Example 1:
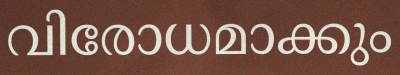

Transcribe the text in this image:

വിരോധമാക്കും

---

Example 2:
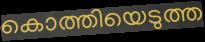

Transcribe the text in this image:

കൊത്തിയെടുത്ത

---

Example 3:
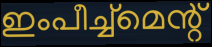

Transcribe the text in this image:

ഇംപീച്ച്മെന്റ്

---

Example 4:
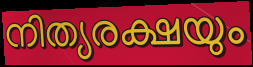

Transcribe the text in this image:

നിത്യരക്ഷയും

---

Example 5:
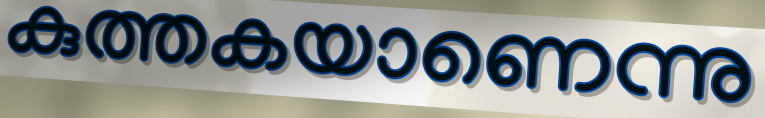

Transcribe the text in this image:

കുത്തകയാണെന്നു